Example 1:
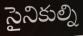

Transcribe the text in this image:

సైనికుల్ని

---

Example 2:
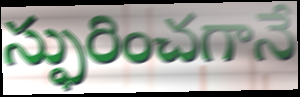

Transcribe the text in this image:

స్ఫురించగానే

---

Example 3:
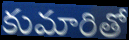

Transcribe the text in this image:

కుమారితో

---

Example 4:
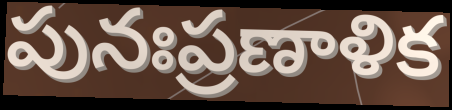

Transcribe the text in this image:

పునఃప్రణాళిక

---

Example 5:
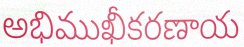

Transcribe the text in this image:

అభిముఖీకరణాయ